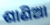
ଶାଣିଆ